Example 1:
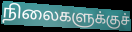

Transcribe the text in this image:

நிலைகளுக்குச்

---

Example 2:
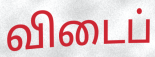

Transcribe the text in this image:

விடைப்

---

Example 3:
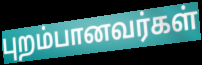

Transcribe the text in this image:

புறம்பானவர்கள்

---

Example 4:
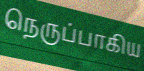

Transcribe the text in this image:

நெருப்பாகிய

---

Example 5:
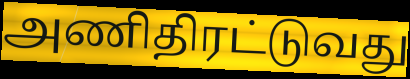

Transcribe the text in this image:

அணிதிரட்டுவது